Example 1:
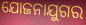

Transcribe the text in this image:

ଯୋଜନାଯୁଗର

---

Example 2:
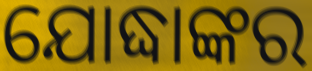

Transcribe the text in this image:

ଯୋଦ୍ଧାଙ୍କର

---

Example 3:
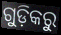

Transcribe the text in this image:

ଗୁଡ଼ିକରୁ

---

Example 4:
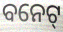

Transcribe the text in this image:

ବନେଟ୍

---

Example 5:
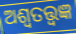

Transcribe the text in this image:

ଅଶ୍ୱତତ୍ତ୍ୱଜ୍ଞ